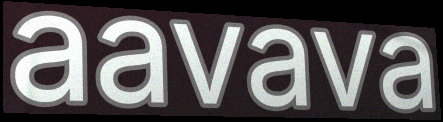
aavava